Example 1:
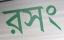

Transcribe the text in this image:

রসং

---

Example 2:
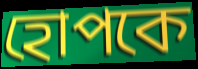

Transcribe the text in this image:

হোপকে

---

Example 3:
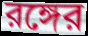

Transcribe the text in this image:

রঙ্গের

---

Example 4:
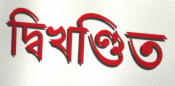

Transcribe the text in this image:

দ্বিখণ্ডিত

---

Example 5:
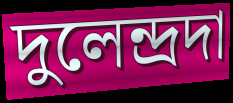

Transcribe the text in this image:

দুলেন্দ্রদা